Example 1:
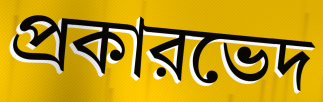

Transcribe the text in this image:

প্রকারভেদ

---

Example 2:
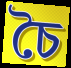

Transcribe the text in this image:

চৈ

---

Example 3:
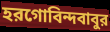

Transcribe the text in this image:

হরগোবিন্দবাবুর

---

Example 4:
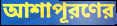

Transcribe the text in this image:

আশাপূরণের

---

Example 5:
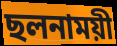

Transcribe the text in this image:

ছলনাময়ী